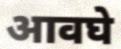
आवघे